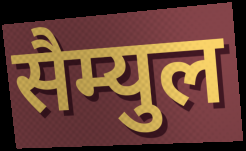
सैम्युल